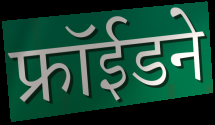
फ्रॉईडने